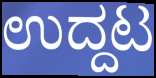
ಉದ್ದಟ